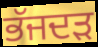
ਭੱਜਦੜ